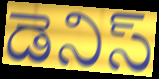
డెనిస్